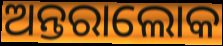
ଅନ୍ତରାଲୋକ